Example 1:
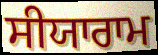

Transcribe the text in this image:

ਸੀਯਾਰਾਮ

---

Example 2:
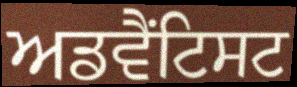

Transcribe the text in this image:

ਅਡਵੈਂਟਿਸਟ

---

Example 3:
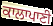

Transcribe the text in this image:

ਕਾਲਾਪਾਣੀ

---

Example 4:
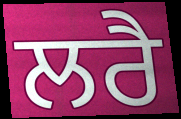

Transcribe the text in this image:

ਲਰੈ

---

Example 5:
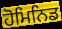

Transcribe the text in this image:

ਹੋਮਿਨਿਡ